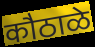
कौठाळे